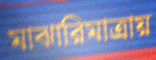
মাঝারিমাত্রায়